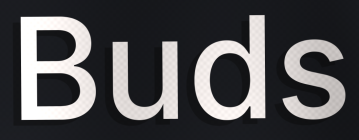
Buds